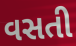
વસતી